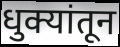
धुक्यांतून